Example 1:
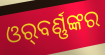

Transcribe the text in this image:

ଓର୍‌ବର୍ଣ୍ଣଙ୍କର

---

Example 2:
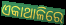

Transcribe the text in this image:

ଏକାଥାଳିରେ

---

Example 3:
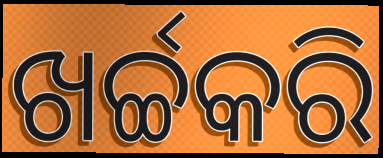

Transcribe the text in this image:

ଖର୍ଚ୍ଚକରି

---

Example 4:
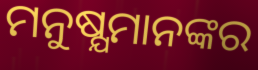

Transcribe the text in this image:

ମନୁଷ୍ଯମାନଙ୍କର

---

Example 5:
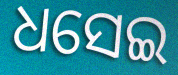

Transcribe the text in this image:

ଧସେଇ